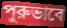
পুরুভাবে